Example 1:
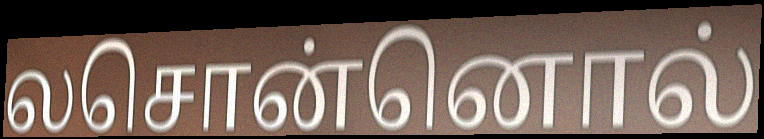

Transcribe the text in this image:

லசொன்னொல்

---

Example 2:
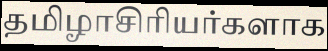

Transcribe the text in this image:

தமிழாசிரியர்களாக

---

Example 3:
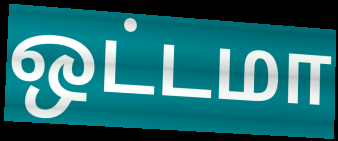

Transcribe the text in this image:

ஒட்டமா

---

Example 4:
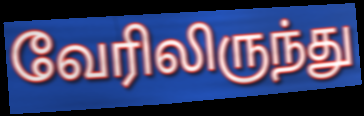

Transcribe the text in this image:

வேரிலிருந்து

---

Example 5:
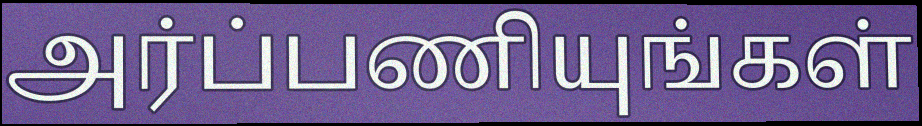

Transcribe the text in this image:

அர்ப்பணியுங்கள்